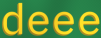
deee